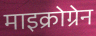
माइक्रोग्रेन